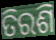
ତିରଶି